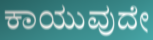
ಕಾಯುವುದೇ